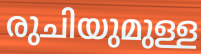
രുചിയുമുള്ള